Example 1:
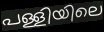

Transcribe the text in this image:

പള്ളിയിലെ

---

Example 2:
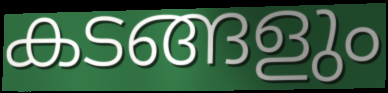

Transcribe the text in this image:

കടങ്ങളും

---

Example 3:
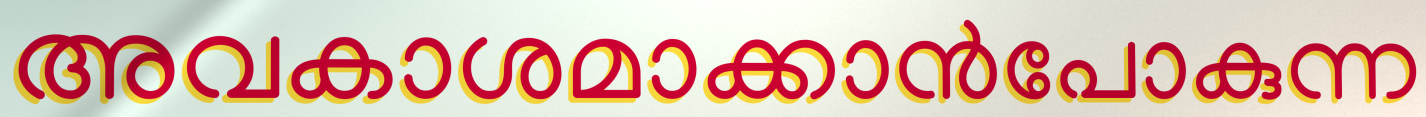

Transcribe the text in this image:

അവകാശമാക്കാൻപോകുന്ന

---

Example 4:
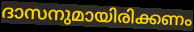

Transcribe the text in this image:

ദാസനുമായിരിക്കണം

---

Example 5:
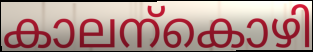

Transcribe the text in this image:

കാലന്കൊഴി